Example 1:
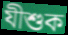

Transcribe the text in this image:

যীশুক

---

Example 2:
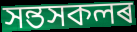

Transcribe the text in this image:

সন্তসকলৰ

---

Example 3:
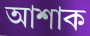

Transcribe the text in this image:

আশাক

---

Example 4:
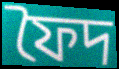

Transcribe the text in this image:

ফৈদ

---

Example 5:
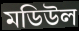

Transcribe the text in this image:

মডিউল